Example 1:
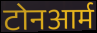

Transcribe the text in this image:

टोनआर्म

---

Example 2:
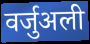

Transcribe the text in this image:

वर्जुअली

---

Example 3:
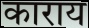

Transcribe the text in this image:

काराय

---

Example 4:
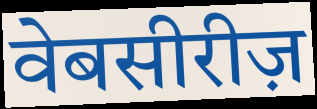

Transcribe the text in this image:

वेबसीरीज़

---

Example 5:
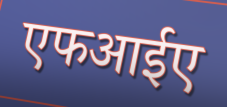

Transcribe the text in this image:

एफआईए